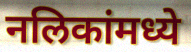
नलिकांमध्ये